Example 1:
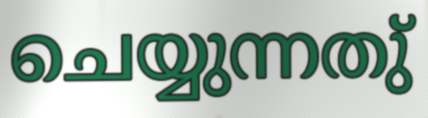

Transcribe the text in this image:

ചെയ്യുന്നതു്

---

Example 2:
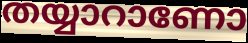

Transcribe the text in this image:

തയ്യാറാണോ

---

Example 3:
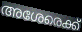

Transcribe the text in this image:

അശേരെക്ക്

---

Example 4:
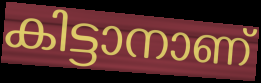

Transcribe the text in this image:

കിട്ടാനാണ്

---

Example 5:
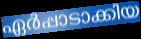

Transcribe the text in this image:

ഏർപ്പാടാക്കിയ